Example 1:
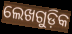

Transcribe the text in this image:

ଲେଖଗୁଡ଼ିକ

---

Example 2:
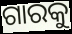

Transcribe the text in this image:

ଗାରକୁ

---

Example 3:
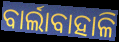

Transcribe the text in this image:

ବାର୍ଲାବାହାଳି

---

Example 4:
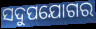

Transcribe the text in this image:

ସଦୁପଯୋଗର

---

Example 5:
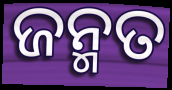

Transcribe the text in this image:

ଜନ୍ମତ